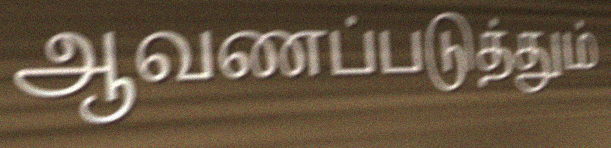
ஆவணப்படுத்தும்